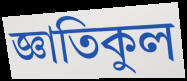
জ্ঞাতিকুল